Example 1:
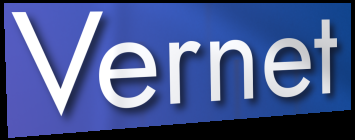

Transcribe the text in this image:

Vernet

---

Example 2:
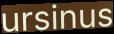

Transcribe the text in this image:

ursinus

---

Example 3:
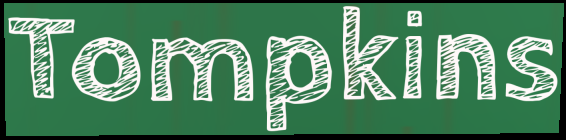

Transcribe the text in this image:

Tompkins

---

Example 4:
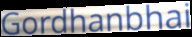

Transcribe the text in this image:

Gordhanbhai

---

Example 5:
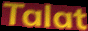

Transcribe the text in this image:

Talat